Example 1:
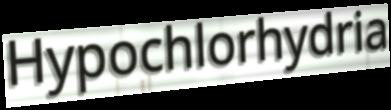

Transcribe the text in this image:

Hypochlorhydria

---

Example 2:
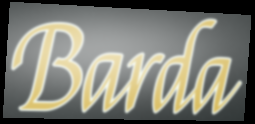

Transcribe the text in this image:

Barda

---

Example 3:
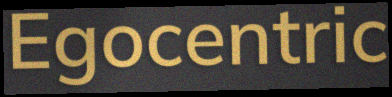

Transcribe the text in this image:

Egocentric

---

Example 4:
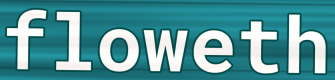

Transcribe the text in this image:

floweth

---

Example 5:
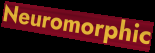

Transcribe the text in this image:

Neuromorphic